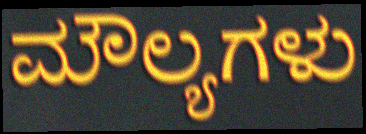
ಮೌಲ್ಯಗಳು